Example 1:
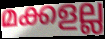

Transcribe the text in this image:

മക്കളല്ല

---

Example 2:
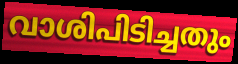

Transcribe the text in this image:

വാശിപിടിച്ചതും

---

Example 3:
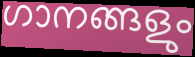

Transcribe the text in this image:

ഗാനങ്ങളും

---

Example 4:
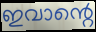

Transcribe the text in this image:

ഇവാന്റെ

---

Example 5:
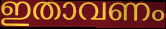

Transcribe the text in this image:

ഇതാവണം